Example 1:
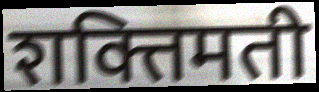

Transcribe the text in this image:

शक्तिमती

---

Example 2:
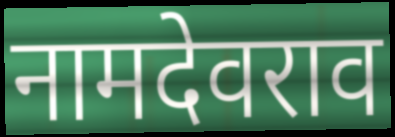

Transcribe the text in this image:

नामदेवराव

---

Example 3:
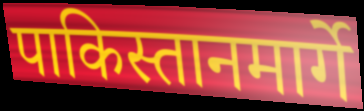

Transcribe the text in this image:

पाकिस्तानमार्गे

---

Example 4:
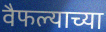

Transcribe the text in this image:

वैफल्याच्या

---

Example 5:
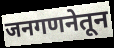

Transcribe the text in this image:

जनगणनेतून